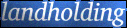
landholding